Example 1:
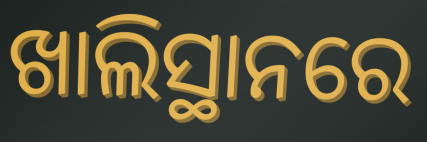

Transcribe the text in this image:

ଖାଲିସ୍ଥାନରେ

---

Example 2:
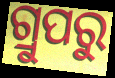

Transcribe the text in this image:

ଗ୍ରୁପରୁ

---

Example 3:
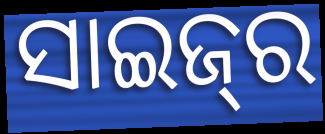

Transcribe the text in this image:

ସାଇଜ୍‌ର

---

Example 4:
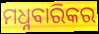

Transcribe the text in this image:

ମଧ୍ନବାରିକର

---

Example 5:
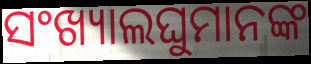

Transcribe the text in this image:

ସଂଖ୍ୟାଲଘୁମାନଙ୍କ